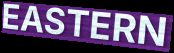
EASTERN